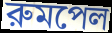
রুমপেল